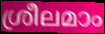
ശ്രീലമാം